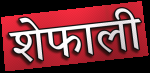
शेफाली